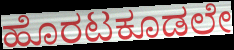
ಹೊರಟಕೂಡಲೇ